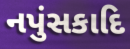
નપુંસકાદિ